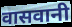
वासवानी